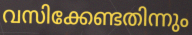
വസിക്കേണ്ടതിന്നും